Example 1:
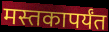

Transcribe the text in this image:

मस्तकापर्यंत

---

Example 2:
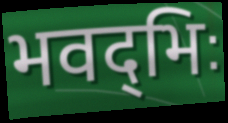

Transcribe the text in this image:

भवद्‌भिः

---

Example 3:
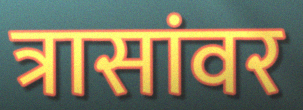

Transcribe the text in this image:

त्रासांवर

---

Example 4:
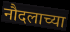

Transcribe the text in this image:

नौदलाच्या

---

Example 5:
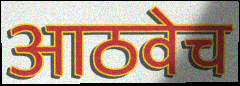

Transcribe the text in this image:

आठवेच